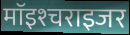
मॉइश्चराइजर